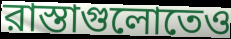
রাস্তাগুলোতেও